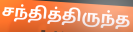
சந்தித்திருந்த